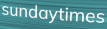
sundaytimes